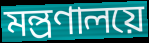
মন্ত্ৰণালয়ে